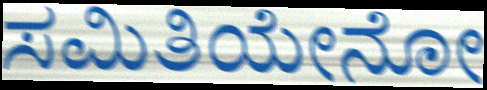
ಸಮಿತಿಯೇನೋ